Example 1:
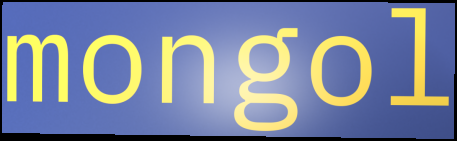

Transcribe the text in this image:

mongol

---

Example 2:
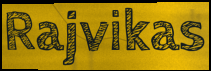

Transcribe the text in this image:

Rajvikas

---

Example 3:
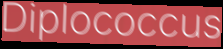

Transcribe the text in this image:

Diplococcus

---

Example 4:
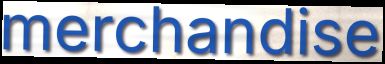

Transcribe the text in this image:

merchandise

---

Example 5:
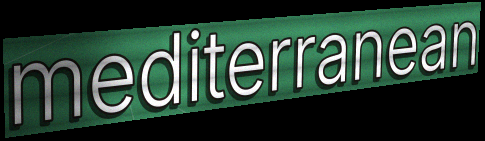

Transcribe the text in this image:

mediterranean